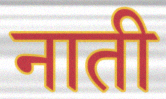
नाती